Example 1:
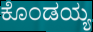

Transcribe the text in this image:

ಕೊಂಡಯ್ಯ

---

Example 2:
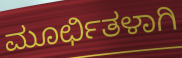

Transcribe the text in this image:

ಮೂರ್ಛಿತಳಾಗಿ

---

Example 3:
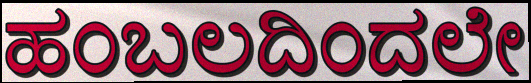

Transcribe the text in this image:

ಹಂಬಲದಿಂದಲೇ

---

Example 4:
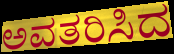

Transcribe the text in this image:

ಅವತರಿಸಿದ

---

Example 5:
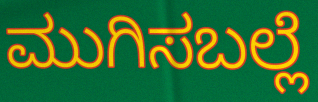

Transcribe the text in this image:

ಮುಗಿಸಬಲ್ಲೆ